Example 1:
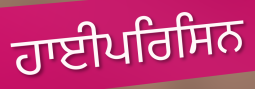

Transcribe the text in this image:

ਹਾਈਪਰਿਸਿਨ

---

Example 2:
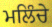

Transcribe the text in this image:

ਮਲਿੰਚੇ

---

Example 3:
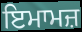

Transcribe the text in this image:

ਇਮਾਮਜ਼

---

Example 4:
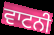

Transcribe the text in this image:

ਵਾਟਨੀ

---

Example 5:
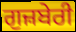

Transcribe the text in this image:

ਗੁਜ਼ਬੇਰੀ